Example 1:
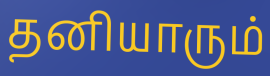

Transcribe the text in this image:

தனியாரும்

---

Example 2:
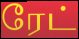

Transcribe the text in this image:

ரேட்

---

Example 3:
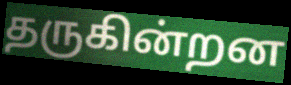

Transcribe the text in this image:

தருகின்றன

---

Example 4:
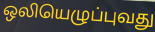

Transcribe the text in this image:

ஒலியெழுப்புவது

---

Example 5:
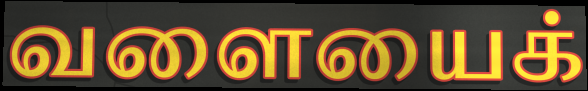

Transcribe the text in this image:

வளையைக்